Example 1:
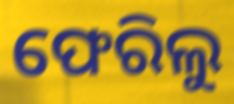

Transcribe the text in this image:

ଫେରିଲୁ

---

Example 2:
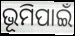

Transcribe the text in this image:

ଭୂମିପାଇଁ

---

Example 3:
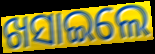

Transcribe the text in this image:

ଖସାଇଲେ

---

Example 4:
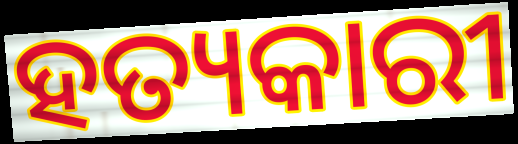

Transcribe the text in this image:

ହତ୍ୟକାରୀ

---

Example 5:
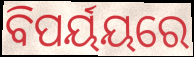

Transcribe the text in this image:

ବିପର୍ୟୟରେ